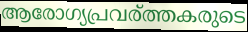
ആരോഗ്യപ്രവര്ത്തകരുടെ